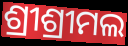
ଶ୍ରୀଶ୍ରୀମଲ